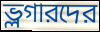
ভ্লগারদের